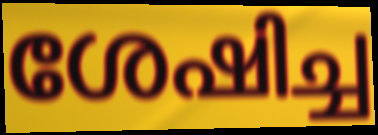
ശേഷിച്ച